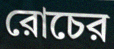
রোচের